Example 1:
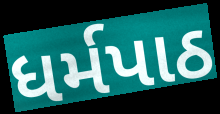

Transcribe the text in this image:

ધર્મપાઠ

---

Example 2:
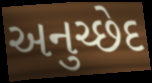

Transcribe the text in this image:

અનુચ્છેદ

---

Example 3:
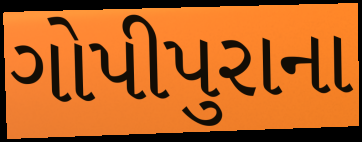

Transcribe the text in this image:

ગોપીપુરાના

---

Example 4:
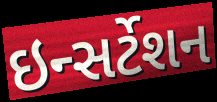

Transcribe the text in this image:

ઇન્સર્ટેશન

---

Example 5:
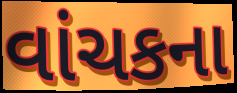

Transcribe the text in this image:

વાંચકના